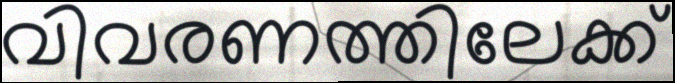
വിവരണത്തിലേക്ക്